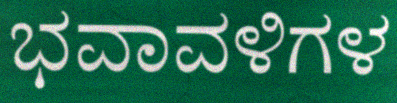
ಭವಾವಳಿಗಳ